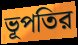
ভূপতির